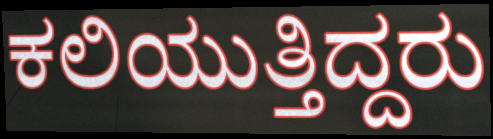
ಕಲಿಯುತ್ತಿದ್ದರು